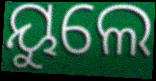
ୟୁଲେ